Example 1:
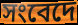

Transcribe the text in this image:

সংবেদে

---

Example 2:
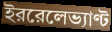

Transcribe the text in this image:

ইররেলেভ্যাণ্ট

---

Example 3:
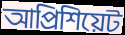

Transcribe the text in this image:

আপ্রিশিয়েট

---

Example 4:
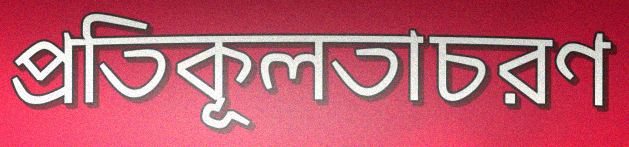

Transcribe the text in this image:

প্রতিকূলতাচরণ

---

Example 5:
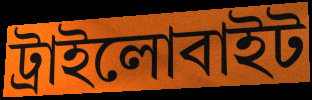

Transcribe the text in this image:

ট্রাইলোবাইট